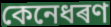
কেনেধৰণ